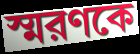
স্মরণকে